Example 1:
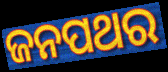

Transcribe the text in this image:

ଜନପଥର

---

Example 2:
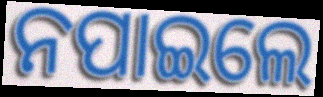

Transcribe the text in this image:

ନପାଇଲେ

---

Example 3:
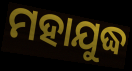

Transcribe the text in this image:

ମହାଯୁଦ୍ଧ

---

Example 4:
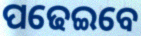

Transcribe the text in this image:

ପଢେଇବେ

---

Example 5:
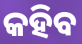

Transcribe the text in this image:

କହିବ